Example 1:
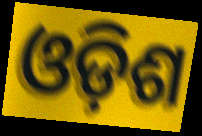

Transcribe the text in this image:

ଓଡ଼ିଶ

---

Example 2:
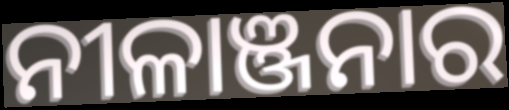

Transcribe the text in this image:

ନୀଳାଞ୍ଜନାର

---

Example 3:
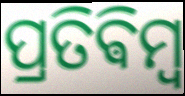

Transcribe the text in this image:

ପ୍ରତିଵିମ୍ବ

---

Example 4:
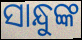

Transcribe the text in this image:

ସାନ୍ଧୁଙ୍କ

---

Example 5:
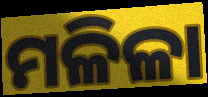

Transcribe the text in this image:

ମଳିଳା